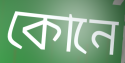
কোনে